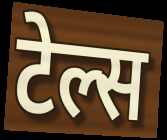
टेल्स